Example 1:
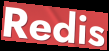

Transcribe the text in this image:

Redis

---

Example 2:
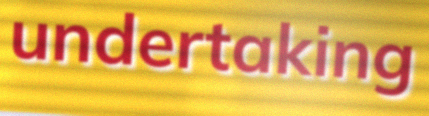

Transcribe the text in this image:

undertaking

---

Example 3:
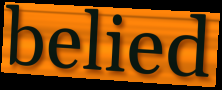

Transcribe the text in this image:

belied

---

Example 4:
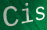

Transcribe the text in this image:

Cis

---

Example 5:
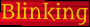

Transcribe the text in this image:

Blinking